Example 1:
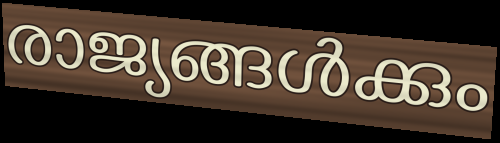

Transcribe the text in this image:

രാജ്യങ്ങൾക്കും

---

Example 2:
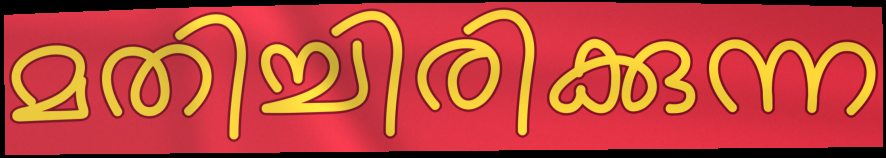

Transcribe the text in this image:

മതിച്ചിരിക്കുന്ന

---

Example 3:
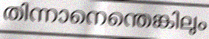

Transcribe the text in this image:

തിന്നാനെന്തെങ്കിലും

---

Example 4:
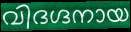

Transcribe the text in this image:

വിദഗ്ദനായ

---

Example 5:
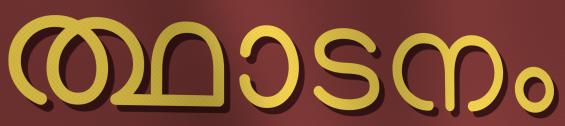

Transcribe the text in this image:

ത്ഥാടനം